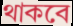
থাকবে